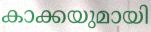
കാക്കയുമായി